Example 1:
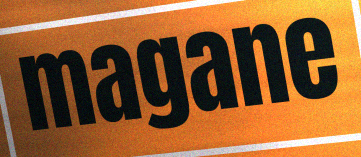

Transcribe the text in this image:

magane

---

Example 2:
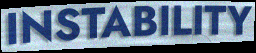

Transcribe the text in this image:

INSTABILITY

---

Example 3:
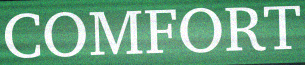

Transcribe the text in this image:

COMFORT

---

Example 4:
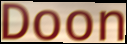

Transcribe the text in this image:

Doon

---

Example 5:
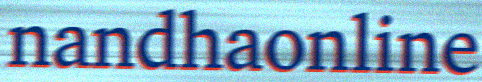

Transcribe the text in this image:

nandhaonline